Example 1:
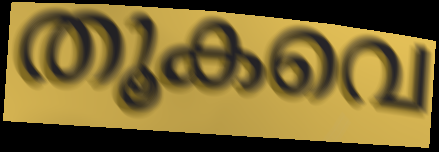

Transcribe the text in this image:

തൂകവെ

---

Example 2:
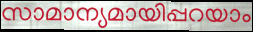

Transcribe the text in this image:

സാമാന്യമായിപ്പറയാം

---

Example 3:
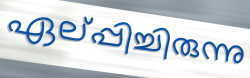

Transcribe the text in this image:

ഏല്പ്പിച്ചിരുന്നു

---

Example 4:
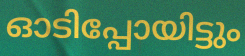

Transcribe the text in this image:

ഓടിപ്പോയിട്ടും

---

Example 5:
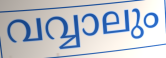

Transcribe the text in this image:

വവ്വാലും